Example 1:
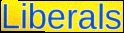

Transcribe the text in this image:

Liberals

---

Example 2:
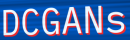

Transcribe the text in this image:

DCGANs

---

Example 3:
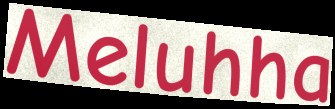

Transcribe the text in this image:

Meluhha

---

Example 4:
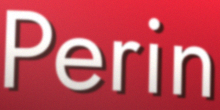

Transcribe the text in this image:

Perin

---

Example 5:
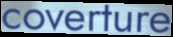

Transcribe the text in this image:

coverture